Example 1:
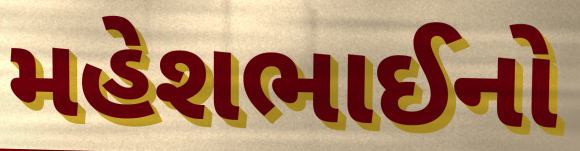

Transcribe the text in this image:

મહેશભાઈનો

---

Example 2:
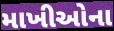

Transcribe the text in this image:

માખીઓના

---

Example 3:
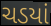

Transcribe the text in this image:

ચડયાં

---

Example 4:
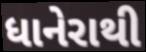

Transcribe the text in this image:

ધાનેરાથી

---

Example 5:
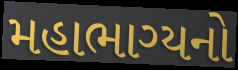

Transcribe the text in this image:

મહાભાગ્યનો